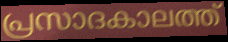
പ്രസാദകാലത്ത്